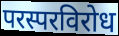
परस्परविरोध